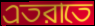
এতরাতে